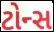
ટોન્સ